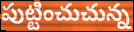
పుట్టించుచున్న